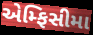
એમ્ફિસીમા